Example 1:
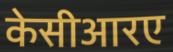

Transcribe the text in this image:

केसीआरए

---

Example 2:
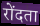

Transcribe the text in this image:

रोंदता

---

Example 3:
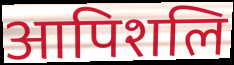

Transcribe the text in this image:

आपिशलि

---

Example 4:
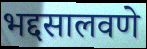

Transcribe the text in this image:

भद्दसालवणे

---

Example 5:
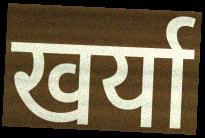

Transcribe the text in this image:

खर्या